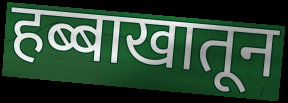
हब्बाखातून